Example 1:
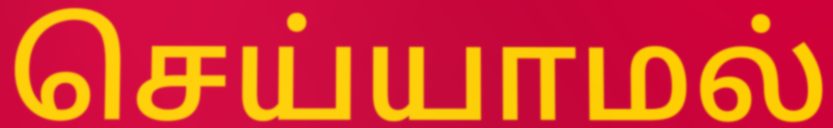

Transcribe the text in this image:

செய்யாமல்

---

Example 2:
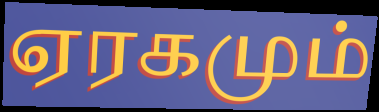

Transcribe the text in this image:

ஏரகமும்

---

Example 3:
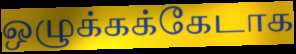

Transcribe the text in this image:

ஒழுக்கக்கேடாக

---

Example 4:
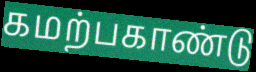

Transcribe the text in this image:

கமற்பகாண்டு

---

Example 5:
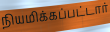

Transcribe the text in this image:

நியமிக்கப்பட்டார்